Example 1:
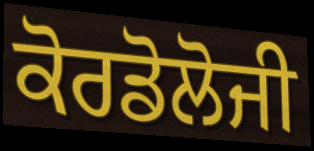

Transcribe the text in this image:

ਕੋਰਡੋਲੋਜੀ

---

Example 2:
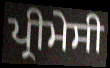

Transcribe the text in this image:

ਪ੍ਰੀਮੇਸੀ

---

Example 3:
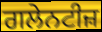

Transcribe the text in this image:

ਗਲੇਨਟੀਜ਼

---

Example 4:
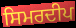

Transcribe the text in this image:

ਸਿਮਰਦੀਪ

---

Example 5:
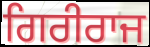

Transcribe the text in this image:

ਗਿਰੀਰਾਜ